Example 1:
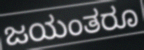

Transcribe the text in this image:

ಜಯಂತರೂ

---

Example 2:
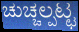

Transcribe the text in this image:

ಚುಚ್ಚಲ್ಪಟ್ಟ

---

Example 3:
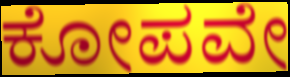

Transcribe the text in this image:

ಕೋಪವೇ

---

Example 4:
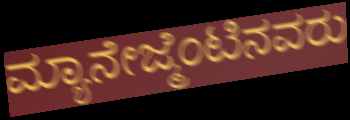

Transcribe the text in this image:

ಮ್ಯಾನೇಜ್ಮೆಂಟಿನವರು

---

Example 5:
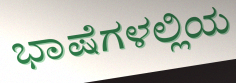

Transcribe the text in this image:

ಭಾಷೆಗಳಲ್ಲಿಯ